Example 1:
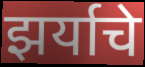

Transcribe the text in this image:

झर्याचे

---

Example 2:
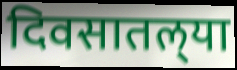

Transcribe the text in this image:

दिवसातल्या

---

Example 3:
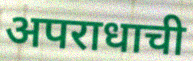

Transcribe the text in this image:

अपराधाची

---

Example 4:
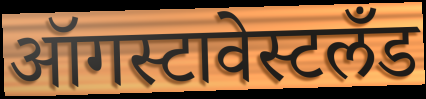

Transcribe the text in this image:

ऑगस्टावेस्टलँड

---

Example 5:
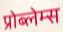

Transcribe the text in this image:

प्रोब्लेम्स